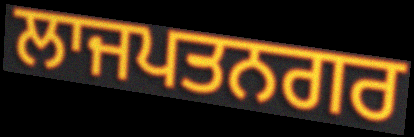
ਲਾਜਪਤਨਗਰ